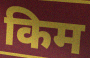
किम